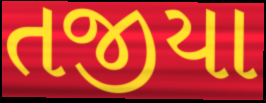
તજીયા